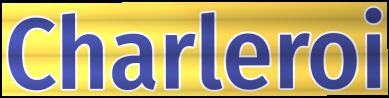
Charleroi